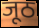
जूठ